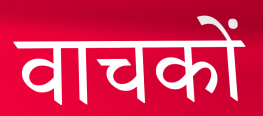
वाचकों